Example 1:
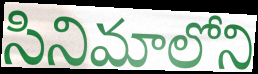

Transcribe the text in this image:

సినిమాలోని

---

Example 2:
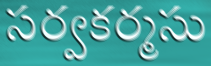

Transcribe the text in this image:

సర్వకర్మసు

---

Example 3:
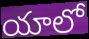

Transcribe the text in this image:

యాలో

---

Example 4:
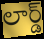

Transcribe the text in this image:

లార్డ్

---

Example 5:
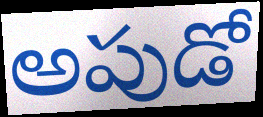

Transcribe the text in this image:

అపుడో